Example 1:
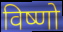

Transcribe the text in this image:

विष्णो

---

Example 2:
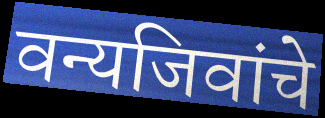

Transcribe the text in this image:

वन्यजिवांचे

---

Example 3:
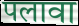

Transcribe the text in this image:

पलावा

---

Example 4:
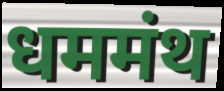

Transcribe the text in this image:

धममंथ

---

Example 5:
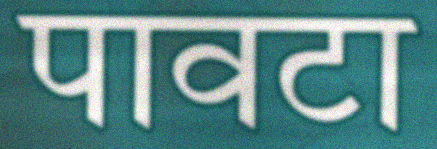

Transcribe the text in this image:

पावटा